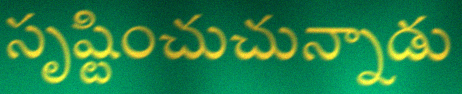
సృష్టించుచున్నాడు